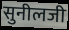
सुनीलजी